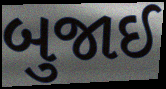
બુજાઈ